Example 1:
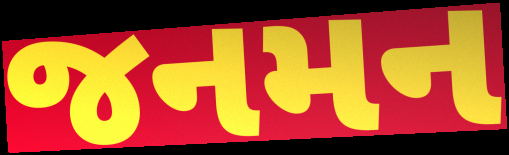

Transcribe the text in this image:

જનમન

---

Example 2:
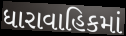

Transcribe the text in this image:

ધારાવાહિકમાં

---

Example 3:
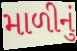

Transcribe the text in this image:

માળીનું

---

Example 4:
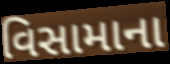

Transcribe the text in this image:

વિસામાના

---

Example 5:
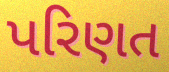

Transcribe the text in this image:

પરિણત